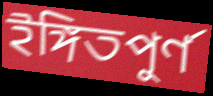
ইঙ্গিতপুর্ণ